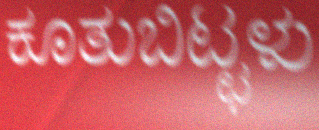
ಕೂತುಬಿಟ್ಟಳು